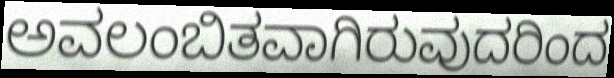
ಅವಲಂಬಿತವಾಗಿರುವುದರಿಂದ